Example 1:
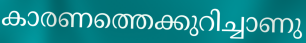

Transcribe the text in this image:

കാരണത്തെക്കുറിച്ചാണു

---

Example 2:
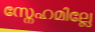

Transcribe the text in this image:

സ്നേഹമില്ലേ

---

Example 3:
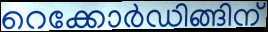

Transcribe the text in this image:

റെക്കോർഡിങ്ങിന്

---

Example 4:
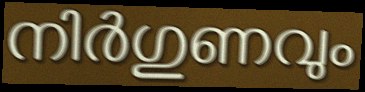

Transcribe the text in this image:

നിർഗുണവും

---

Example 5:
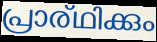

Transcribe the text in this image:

പ്രാര്ഥിക്കും